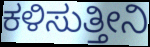
ಕಳಿಸುತ್ತೀನಿ